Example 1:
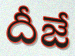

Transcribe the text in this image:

దీజే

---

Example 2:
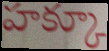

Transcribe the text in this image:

హక్కూ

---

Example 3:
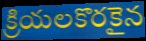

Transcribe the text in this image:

క్రియలకొరకైన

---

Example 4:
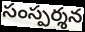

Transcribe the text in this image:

సంస్పర్శన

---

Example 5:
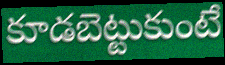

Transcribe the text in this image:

కూడబెట్టుకుంటే